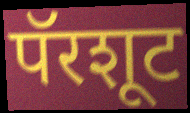
पॅरशूट